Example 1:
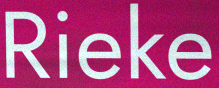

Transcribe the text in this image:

Rieke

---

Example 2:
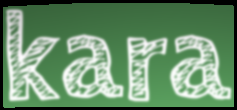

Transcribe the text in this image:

kara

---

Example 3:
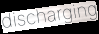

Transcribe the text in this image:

discharging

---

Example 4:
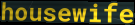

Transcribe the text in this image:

housewife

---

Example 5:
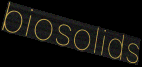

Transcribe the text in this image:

biosolids